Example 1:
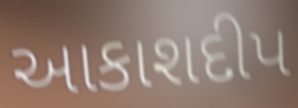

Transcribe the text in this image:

આકાશદીપ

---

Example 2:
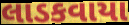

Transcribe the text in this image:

લાડકવાયા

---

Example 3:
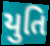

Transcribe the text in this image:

યુતિ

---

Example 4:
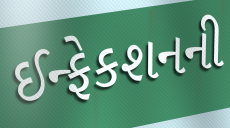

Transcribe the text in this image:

ઈન્ફેકશનની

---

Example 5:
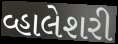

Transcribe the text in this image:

વ્હાલેશરી